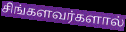
சிங்களவர்களால்